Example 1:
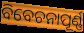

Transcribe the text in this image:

ବିବେଚନାପୂର୍ଣ୍ଣ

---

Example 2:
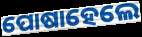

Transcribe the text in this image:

ପୋଷାହେଲେ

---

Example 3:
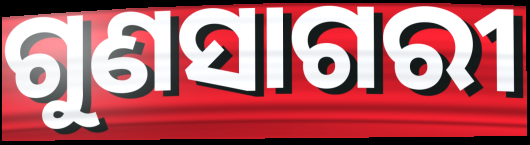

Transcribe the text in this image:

ଗୁଣସାଗରୀ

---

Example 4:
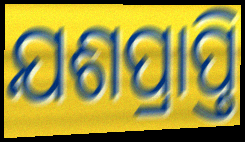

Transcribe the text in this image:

ଯଶପ୍ରାପ୍ତି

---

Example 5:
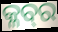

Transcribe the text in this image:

କ୍ଳବ୍‍ର